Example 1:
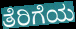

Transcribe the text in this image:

ತೆರಿಗೆಯ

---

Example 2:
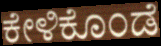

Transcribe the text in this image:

ಕೇಳಿಕೊಂಡೆ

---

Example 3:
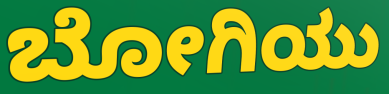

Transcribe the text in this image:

ಬೋಗಿಯು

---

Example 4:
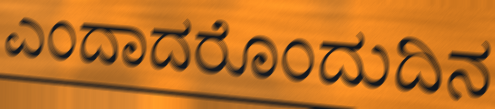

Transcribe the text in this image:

ಎಂದಾದರೊಂದುದಿನ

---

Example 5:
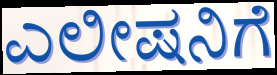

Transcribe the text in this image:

ಎಲೀಷನಿಗೆ